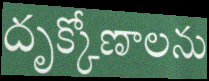
దృక్కోణాలను